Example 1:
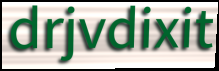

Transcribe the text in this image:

drjvdixit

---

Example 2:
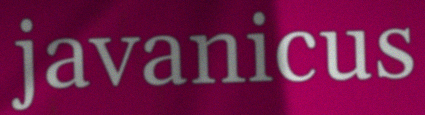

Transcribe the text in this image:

javanicus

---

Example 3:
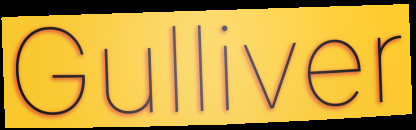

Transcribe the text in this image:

Gulliver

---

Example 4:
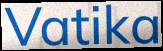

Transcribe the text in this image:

Vatika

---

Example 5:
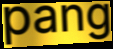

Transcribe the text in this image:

pang